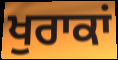
ਖੁਰਾਕਾਂ